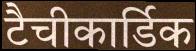
टैचीकार्डिक